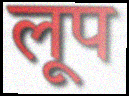
लूप